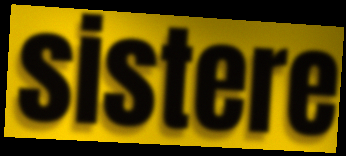
sistere